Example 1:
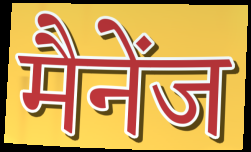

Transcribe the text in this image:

मैनेंज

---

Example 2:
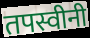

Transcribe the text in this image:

तपस्वीनी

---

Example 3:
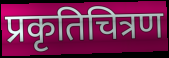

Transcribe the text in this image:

प्रकृतिचित्रण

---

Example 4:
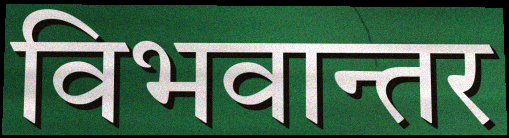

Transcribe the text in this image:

विभवान्तर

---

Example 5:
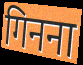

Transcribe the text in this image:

गिनना